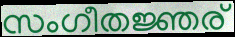
സംഗീതജ്ഞര്